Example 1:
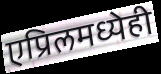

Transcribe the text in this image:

एप्रिलमध्येही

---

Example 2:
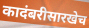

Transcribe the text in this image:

कादंबरीसारखेच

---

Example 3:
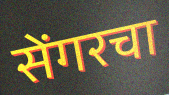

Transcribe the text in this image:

सेंगरचा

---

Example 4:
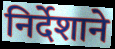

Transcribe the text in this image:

निर्देशाने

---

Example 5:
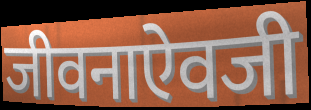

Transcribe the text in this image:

जीवनाऐवजी